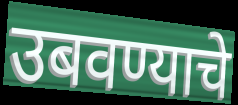
उबवण्याचे